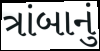
ત્રાંબાનું